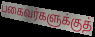
பகைவர்களுக்குத்